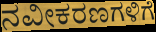
ನವೀಕರಣಗಳಿಗೆ